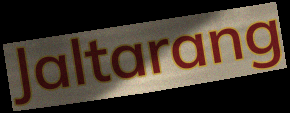
Jaltarang